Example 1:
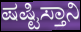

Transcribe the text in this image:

ಷಷ್ಟಿಸ್ತಾನಿ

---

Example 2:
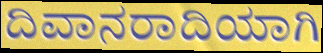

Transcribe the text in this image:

ದಿವಾನರಾದಿಯಾಗಿ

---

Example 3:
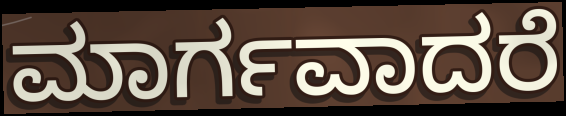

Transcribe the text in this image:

ಮಾರ್ಗವಾದರೆ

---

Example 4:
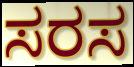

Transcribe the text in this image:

ಸರಸ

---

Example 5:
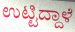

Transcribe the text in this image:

ಉಟ್ಟಿದ್ದಾಳೆ